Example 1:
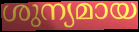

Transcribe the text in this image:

ശുന്യമായ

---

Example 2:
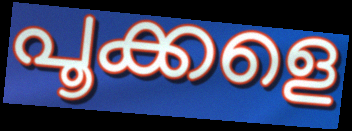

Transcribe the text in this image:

പൂക്കളെ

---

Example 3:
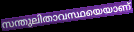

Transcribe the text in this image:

സന്തുലിതാവസ്ഥയെയാണ്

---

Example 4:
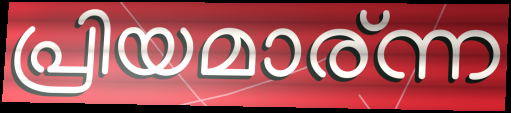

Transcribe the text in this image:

പ്രിയമാര്ന്ന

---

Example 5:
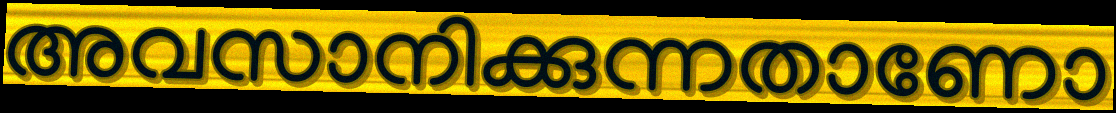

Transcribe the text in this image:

അവസാനിക്കുന്നതാണോ